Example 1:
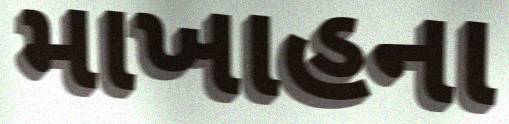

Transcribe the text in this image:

માખાહના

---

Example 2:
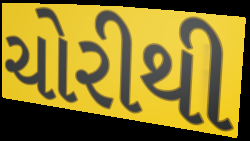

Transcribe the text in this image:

ચોરીથી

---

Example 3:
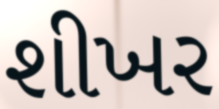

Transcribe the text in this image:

શીખર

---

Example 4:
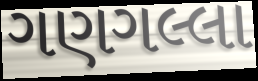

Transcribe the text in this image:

ગણગલ્લા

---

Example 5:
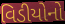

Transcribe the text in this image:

વિડીયોનો